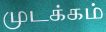
முடக்கம்